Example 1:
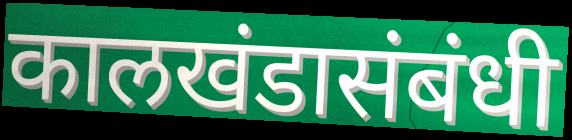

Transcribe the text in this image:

कालखंडासंबंधी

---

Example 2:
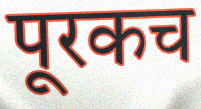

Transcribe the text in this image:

पूरकच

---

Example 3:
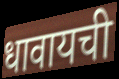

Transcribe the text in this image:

धावायची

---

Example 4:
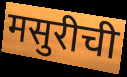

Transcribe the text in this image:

मसुरीची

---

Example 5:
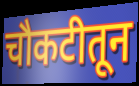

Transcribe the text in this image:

चौकटीतून